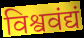
विश्ववंद्यं